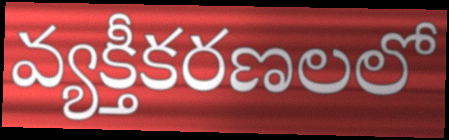
వ్యక్తీకరణలలో